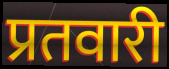
प्रतवारी